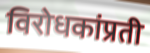
विरोधकांप्रती